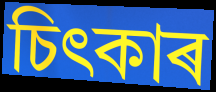
চিৎকাৰ